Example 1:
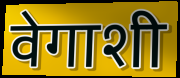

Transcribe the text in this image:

वेगाशी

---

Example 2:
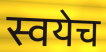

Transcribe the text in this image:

स्वयेच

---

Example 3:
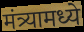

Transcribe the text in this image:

मंत्र्यामध्ये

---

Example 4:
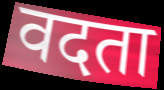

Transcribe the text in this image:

वदता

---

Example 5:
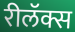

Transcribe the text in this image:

रीलॅक्स